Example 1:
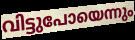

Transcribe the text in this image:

വിട്ടുപോയെന്നും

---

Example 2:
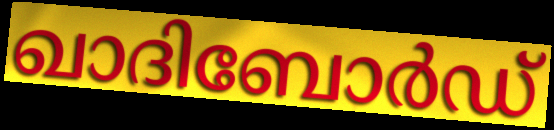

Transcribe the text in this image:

ഖാദിബോർഡ്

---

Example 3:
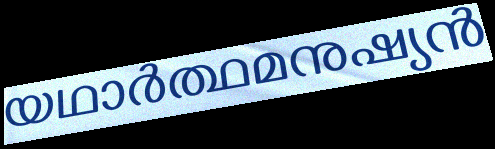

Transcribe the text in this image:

യഥാർത്ഥമനുഷ്യൻ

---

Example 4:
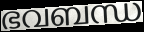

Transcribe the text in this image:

ഭവബന്ധ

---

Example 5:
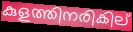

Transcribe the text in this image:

കുളത്തിനരികില്